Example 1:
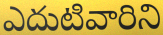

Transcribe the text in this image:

ఎదుటివారిని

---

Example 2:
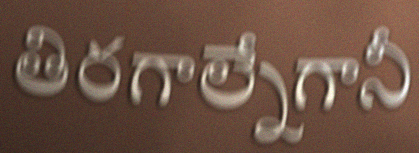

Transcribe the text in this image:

తిరగాల్నేగానీ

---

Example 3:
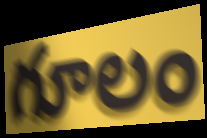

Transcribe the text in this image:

గూలం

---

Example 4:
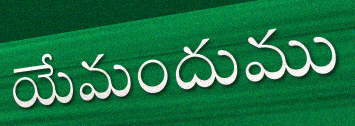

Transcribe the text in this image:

యేమందుము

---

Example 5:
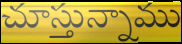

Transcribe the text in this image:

చూస్తున్నాము